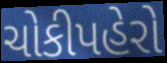
ચોકીપહેરો